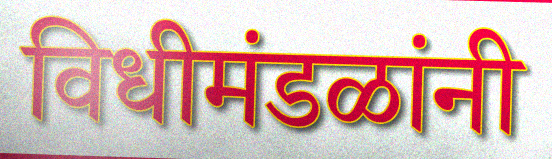
विधीमंडळांनी